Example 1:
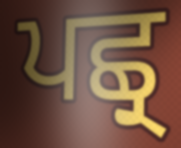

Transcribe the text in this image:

ਪਛ੍ਰ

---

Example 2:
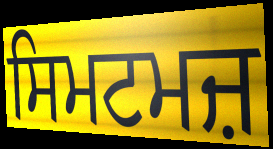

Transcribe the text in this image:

ਸਿਮਟਮਜ਼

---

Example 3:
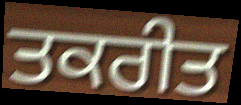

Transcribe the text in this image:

ਤਕਰੀਤ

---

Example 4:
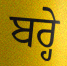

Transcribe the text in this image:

ਬਰ੍ਹੇ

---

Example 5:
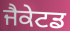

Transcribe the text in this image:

ਜੈਕੇਟਡ